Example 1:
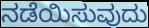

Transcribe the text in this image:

ನಡೆಯಿಸುವುದು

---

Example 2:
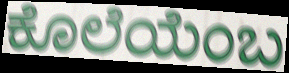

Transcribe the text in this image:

ಕೊಲೆಯೆಂಬ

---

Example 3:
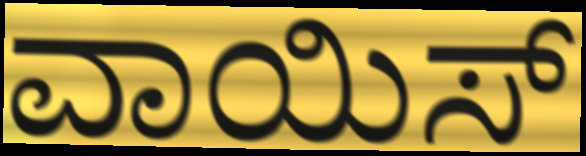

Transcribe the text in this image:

ವಾಯಿಸ್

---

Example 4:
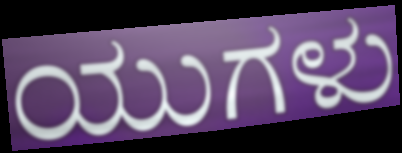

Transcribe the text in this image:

ಯುಗಳು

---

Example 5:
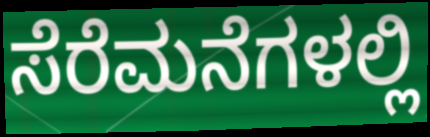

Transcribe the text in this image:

ಸೆರೆಮನೆಗಳಲ್ಲಿ